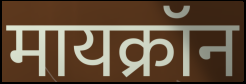
मायक्रॉन